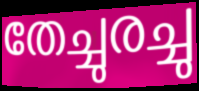
തേച്ചുരച്ചു